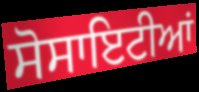
ਸੋਸਾਇਟੀਆਂ